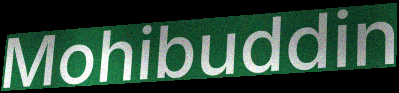
Mohibuddin